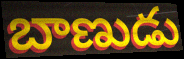
బాణుడు